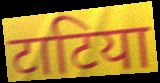
टाटिया